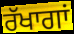
ਰੱਖਾਗਾਂ